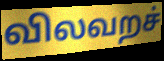
விலவறச்